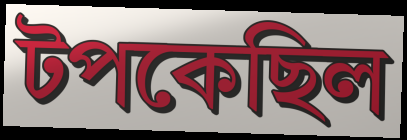
টপকেছিল